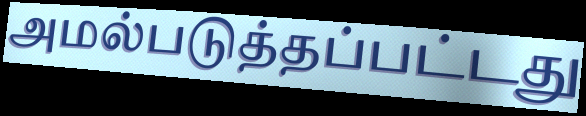
அமல்படுத்தப்பட்டது